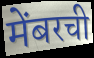
मेंबरची